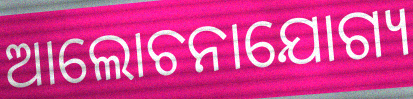
ଆଲୋଚନାଯୋଗ୍ୟ